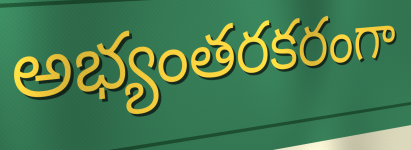
అభ్యంతరకరంగా